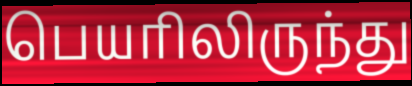
பெயரிலிருந்து